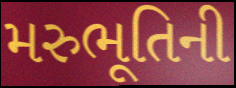
મરુભૂતિની